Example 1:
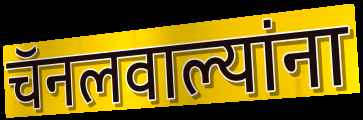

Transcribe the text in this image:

चॅनलवाल्यांना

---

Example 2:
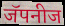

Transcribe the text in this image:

जॅपनीज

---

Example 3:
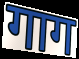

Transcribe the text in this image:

गाग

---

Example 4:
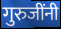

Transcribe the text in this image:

गुरुजींनी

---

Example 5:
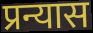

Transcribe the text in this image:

प्रन्यास